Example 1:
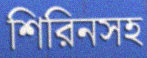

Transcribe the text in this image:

শিরিনসহ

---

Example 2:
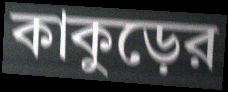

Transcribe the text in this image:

কাকুড়ের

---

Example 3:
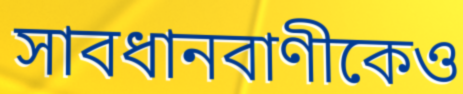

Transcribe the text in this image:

সাবধানবাণীকেও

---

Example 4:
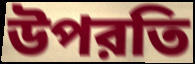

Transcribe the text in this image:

উপরতি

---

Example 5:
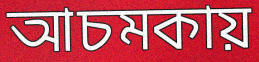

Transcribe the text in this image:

আচমকায়